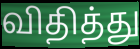
விதித்து